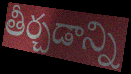
తీర్చడాన్ని